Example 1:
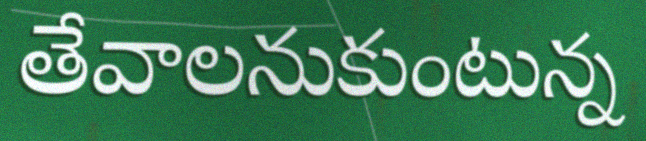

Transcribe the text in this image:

తేవాలనుకుంటున్న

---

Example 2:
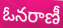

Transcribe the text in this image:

ఓనరాణీ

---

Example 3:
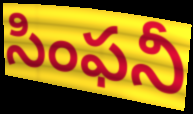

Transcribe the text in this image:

సింఫనీ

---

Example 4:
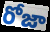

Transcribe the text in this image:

రోజా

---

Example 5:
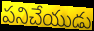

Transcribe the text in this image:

పనిచేయుడు